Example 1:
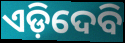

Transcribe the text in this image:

ଏଡ଼ିଦେବି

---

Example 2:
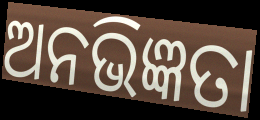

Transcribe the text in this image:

ଅନଭିଜ୍ଞତା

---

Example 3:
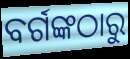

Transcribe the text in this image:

ବର୍ଗଙ୍କଠାରୁ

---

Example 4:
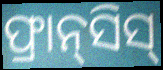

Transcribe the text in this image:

ଫ୍ରାନ୍‌ସିସ୍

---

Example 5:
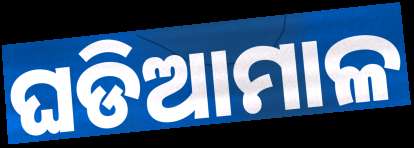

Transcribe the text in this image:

ଘଡିଆମାଳ